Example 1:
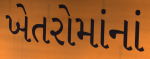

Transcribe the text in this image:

ખેતરોમાંનાં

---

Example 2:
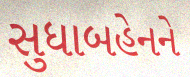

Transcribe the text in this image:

સુધાબહેનને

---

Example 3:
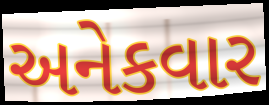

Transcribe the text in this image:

અનેકવાર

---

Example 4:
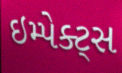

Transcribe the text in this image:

ઇમ્પેક્ટ્સ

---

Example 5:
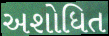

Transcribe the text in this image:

અશોધિત